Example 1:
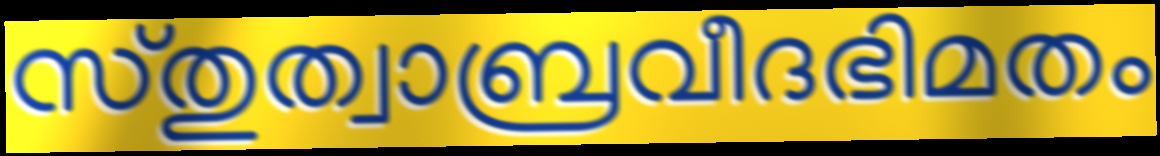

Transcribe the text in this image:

സ്തുത്വാബ്രവീദഭിമതം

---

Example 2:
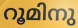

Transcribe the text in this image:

റൂമിനു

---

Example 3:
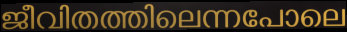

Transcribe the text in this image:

ജീവിതത്തിലെന്നപോലെ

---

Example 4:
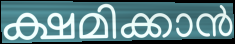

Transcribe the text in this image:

ക്ഷമിക്കാൻ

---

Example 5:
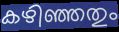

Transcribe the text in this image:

കഴിഞ്ഞതും